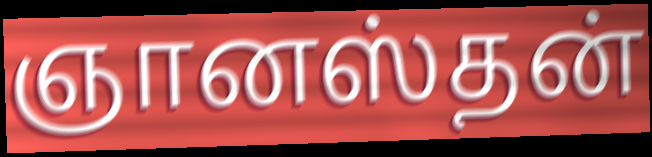
ஞானஸ்தன்